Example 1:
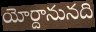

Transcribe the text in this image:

యోర్దానునది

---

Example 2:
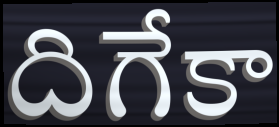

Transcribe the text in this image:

దిగేకా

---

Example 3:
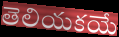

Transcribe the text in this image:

తెలియకయే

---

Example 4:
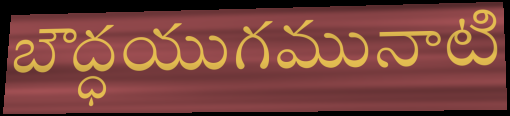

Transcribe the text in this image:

బౌద్ధయుగమునాటి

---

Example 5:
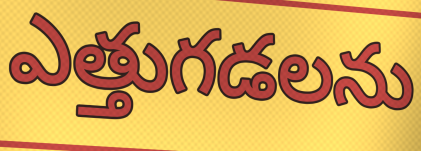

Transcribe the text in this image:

ఎత్తుగడలను